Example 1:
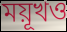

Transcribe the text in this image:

ময়ূখও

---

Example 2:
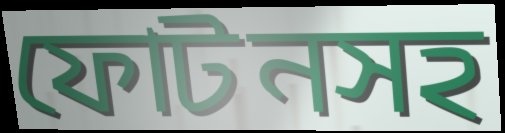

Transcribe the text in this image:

ফোটনসহ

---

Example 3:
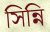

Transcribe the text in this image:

সিন্নি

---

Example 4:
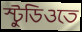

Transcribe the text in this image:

স্টুডিওতে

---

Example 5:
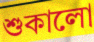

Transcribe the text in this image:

শুকালো